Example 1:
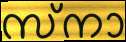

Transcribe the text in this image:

സ്‌നാ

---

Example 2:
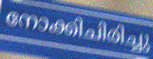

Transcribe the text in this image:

നോക്കിചിരിച്ചു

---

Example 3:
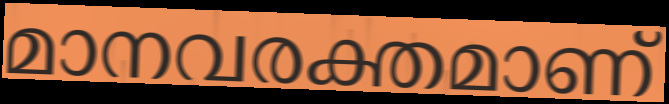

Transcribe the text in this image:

മാനവരക്തമാണ്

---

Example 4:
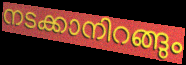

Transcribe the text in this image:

നടക്കാനിറങ്ങും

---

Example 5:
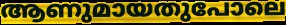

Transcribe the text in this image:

ആണുമായതുപോലെ